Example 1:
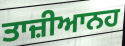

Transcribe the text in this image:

ਤਾਜ਼ੀਆਨਹ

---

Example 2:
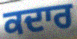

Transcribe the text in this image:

ਕਦਾਰ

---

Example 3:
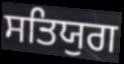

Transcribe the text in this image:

ਸਤਿਯੁਗ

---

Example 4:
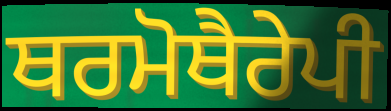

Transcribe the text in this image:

ਥਰਮੋਥੈਰੇਪੀ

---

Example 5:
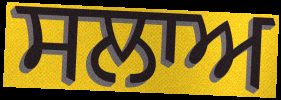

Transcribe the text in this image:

ਸਲਾਅ